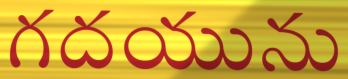
గదయును